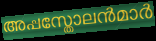
അപ്പസ്തോലൻമാർ